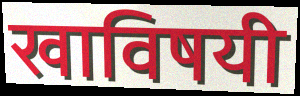
खाविषयी